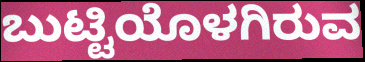
ಬುಟ್ಟಿಯೊಳಗಿರುವ